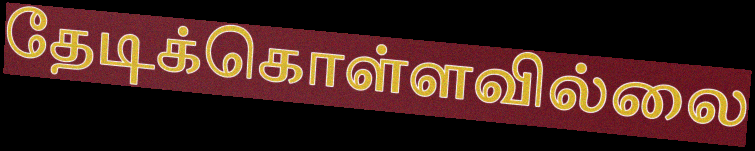
தேடிக்கொள்ளவில்லை